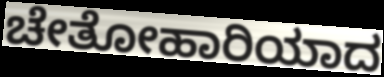
ಚೇತೋಹಾರಿಯಾದ